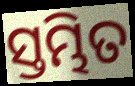
ସ୍ତମ୍ଭିତ